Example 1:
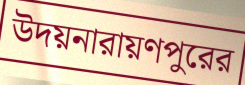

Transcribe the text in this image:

উদয়নারায়ণপুরের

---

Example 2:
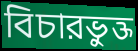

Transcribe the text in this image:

বিচারভুক্ত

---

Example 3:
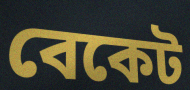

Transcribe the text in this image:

বেকেট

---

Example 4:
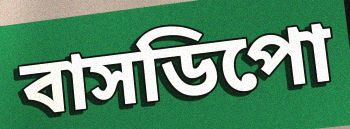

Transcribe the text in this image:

বাসডিপো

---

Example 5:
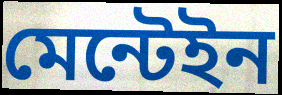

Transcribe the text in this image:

মেন্টেইন